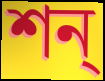
শন্